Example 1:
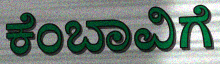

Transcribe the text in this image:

ಕೆಂಬಾವಿಗೆ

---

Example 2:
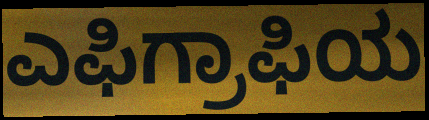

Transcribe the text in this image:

ಎಫಿಗ್ರಾಫಿಯ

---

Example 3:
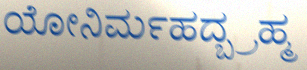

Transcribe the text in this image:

ಯೋನಿರ್ಮಹದ್ಬ್ರಹ್ಮ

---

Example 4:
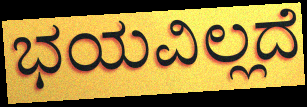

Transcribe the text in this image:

ಭಯವಿಲ್ಲದೆ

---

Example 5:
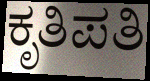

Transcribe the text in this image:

ಕೃತಿಪತಿ